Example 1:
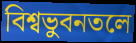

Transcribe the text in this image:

বিশ্বভুবনতলে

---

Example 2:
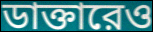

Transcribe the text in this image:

ডাক্তারেও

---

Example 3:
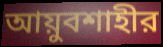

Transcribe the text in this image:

আয়ুবশাহীর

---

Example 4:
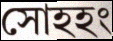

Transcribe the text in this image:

সোহহং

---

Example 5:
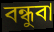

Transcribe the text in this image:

বন্ধুবা